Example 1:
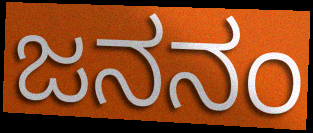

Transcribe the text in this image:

ಜನನಂ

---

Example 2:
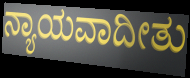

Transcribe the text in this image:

ನ್ಯಾಯವಾದೀತು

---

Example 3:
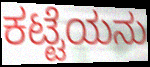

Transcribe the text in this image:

ಕಟ್ಟೆಯನು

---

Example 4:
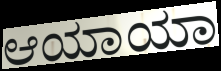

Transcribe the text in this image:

ಆಯಾಯಾ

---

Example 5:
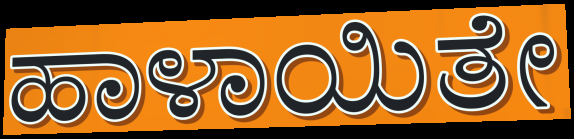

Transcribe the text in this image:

ಹಾಳಾಯಿತೇ